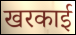
खरकाई